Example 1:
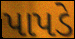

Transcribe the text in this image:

પાપડે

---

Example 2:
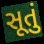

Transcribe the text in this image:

સૂતું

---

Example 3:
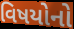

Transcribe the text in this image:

વિષયોનો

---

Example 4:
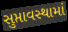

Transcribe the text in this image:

સુપ્તાવસ્થામાં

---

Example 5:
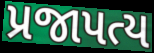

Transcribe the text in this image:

પ્રજાપત્ય